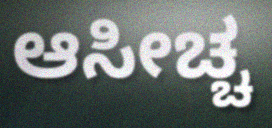
ಆಸೀಚ್ಚ